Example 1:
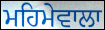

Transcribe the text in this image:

ਮਹਿਮੇਵਾਲਾ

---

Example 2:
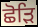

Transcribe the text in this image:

ਛੋੜਿ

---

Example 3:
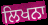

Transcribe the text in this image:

ਲਿਖਨਾ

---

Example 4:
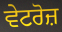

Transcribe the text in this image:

ਵੇਟਰੋਜ਼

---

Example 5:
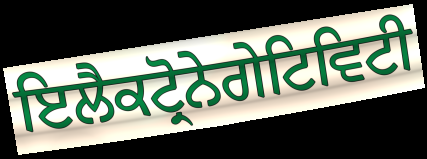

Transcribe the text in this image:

ਇਲੈਕਟ੍ਰੋਨੇਗੇਟਿਵਿਟੀ